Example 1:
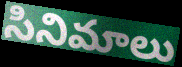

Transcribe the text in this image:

సినిమాలు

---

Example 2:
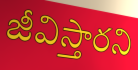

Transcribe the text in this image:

జీవిస్తారని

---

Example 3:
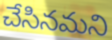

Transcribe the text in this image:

చేసినమని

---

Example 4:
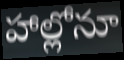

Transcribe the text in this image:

హాల్లోనూ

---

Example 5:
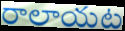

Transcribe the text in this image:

రాలాయట